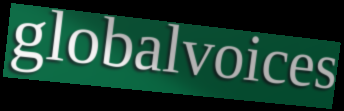
globalvoices